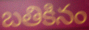
బతికినం